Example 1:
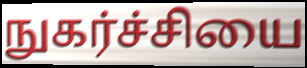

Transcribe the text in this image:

நுகர்ச்சியை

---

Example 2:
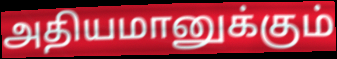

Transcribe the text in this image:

அதியமானுக்கும்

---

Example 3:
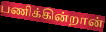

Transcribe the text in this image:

பணிக்கின்றான்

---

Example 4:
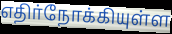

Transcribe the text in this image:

எதிர்நோக்கியுள்ள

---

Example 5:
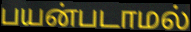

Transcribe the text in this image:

பயன்படாமல்